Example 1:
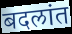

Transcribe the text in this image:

बदलांत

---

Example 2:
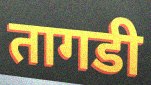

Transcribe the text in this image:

तागडी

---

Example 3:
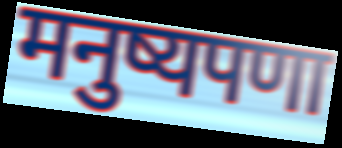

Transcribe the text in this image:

मनुष्यपणा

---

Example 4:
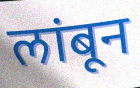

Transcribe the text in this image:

लांबून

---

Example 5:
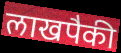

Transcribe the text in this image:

लाखपैकी